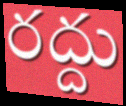
రద్దు